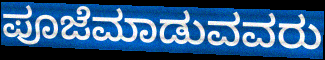
ಪೂಜೆಮಾಡುವವರು